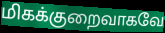
மிகக்குறைவாகவே